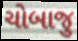
ચોબાજુ